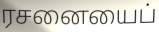
ரசனையைப்